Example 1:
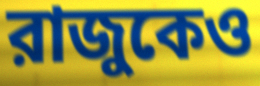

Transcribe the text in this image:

রাজুকেও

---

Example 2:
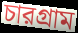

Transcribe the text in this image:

চারগ্রাম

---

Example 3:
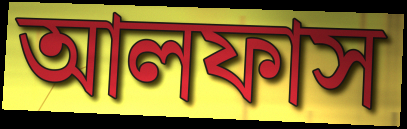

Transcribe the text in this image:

আলফাস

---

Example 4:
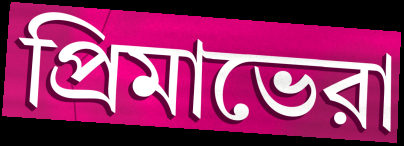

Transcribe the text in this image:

প্রিমাভেরা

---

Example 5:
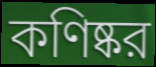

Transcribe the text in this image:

কণিষ্কর